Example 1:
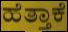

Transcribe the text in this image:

ಹೆತ್ತಾಕೆ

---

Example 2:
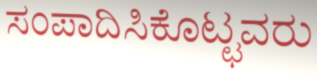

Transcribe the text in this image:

ಸಂಪಾದಿಸಿಕೊಟ್ಟವರು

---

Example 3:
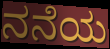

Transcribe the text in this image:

ನನೆಯ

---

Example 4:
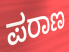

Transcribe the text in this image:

ಪರಾಣ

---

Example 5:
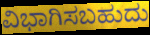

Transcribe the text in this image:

ವಿಭಾಗಿಸಬಹುದು